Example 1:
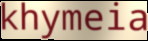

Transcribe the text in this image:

khymeia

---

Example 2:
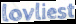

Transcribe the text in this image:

lovliest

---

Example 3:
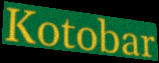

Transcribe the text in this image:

Kotobar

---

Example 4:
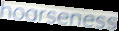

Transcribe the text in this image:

hoarseness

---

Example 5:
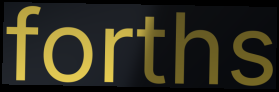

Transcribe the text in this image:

forths